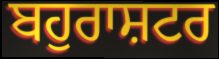
ਬਹੁਰਾਸ਼ਟਰ